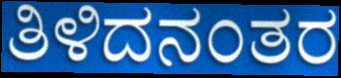
ತಿಳಿದನಂತರ